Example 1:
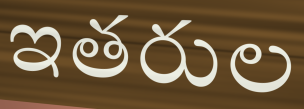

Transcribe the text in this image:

ఇతరుల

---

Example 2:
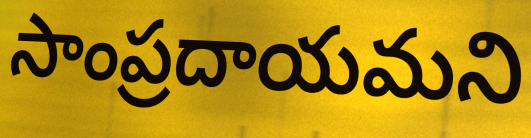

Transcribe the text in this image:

సాంప్రదాయమని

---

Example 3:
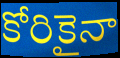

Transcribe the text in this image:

కోరికైనా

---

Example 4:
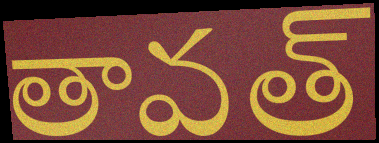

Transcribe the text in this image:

తావత్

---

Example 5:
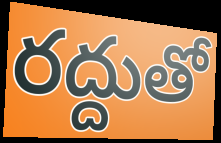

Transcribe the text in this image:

రద్దుతో